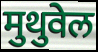
मुथुवेल